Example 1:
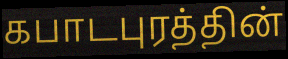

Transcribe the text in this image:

கபாடபுரத்தின்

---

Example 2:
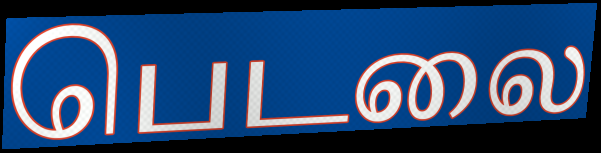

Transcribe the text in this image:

பெடலை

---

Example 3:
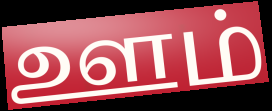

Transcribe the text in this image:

ஊம்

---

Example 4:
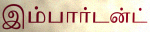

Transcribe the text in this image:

இம்பார்டன்ட்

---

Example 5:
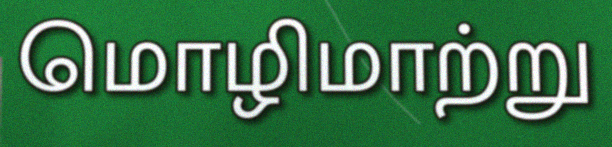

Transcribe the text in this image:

மொழிமாற்று